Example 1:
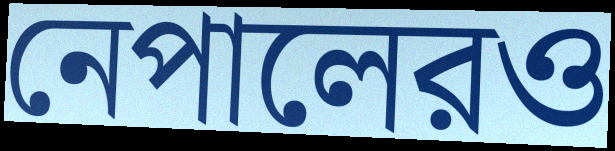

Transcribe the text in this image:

নেপালেরও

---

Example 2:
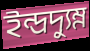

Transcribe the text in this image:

ইন্দ্রদ্যুম্ন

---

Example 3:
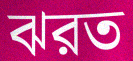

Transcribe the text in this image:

ঝরত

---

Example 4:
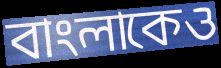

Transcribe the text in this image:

বাংলাকেও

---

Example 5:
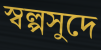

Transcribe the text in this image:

স্বল্পসুদে